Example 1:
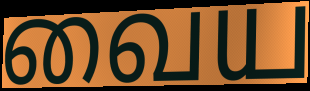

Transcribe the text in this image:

வைய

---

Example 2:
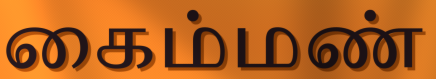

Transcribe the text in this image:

கைம்மண்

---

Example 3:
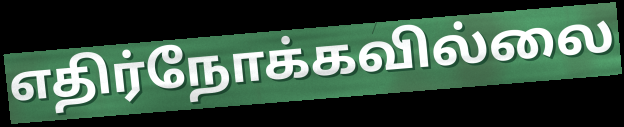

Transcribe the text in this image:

எதிர்நோக்கவில்லை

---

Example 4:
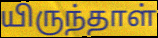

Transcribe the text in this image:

யிருந்தாள்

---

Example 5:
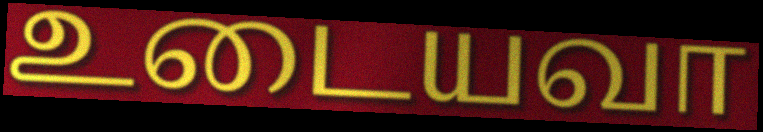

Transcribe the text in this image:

உடையவா